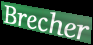
Brecher